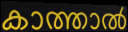
കാത്താൽ